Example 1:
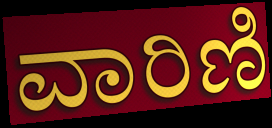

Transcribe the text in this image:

ವಾರಿಣಿ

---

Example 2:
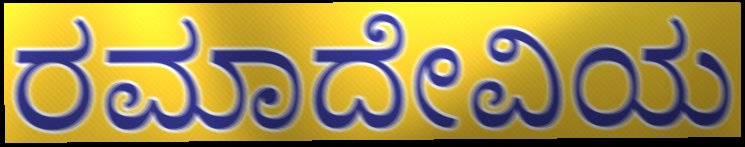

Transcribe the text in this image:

ರಮಾದೇವಿಯ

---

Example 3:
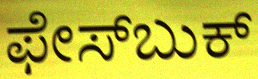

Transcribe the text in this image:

ಫೇಸ್‍ಬುಕ್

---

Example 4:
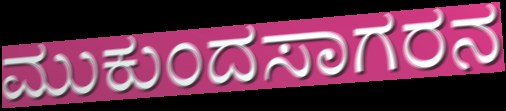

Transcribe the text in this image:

ಮುಕುಂದಸಾಗರನ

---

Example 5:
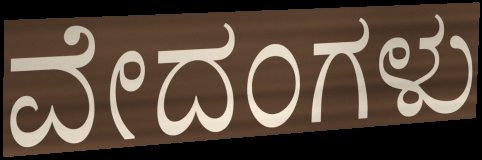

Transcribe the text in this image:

ವೇದಂಗಳು